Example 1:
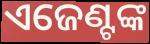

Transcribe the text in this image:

ଏଜେଣ୍ଟଙ୍କ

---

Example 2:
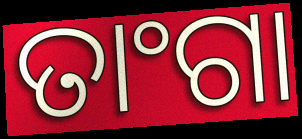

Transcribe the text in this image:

ତାଂଗା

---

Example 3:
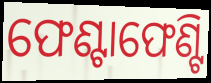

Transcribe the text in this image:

ଫେଣ୍ଟାଫେଣ୍ଟି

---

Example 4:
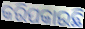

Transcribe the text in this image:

କରିପକାଉଛି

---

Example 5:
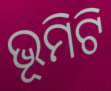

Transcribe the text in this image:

ଭୂମିଟି